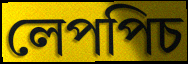
লেপপিচ